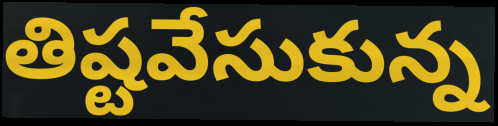
తిష్టవేసుకున్న